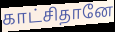
காட்சிதானே